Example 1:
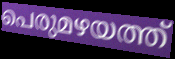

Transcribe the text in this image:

പെരുമഴയത്ത്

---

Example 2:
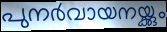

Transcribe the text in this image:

പുനർവായനയ്ക്കും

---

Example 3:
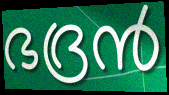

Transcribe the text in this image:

ഭദ്രൻ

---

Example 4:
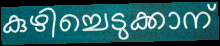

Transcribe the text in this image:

കുഴിച്ചെടുക്കാന്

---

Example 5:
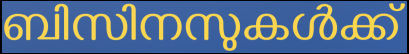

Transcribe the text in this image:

ബിസിനസുകൾക്ക്